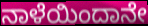
ನಾಳೆಯಿಂದಾನೇ